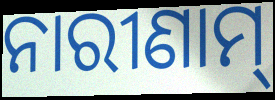
ନାରୀଣାମ୍